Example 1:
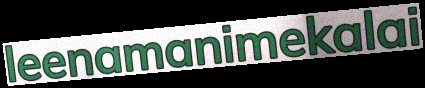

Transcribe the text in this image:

leenamanimekalai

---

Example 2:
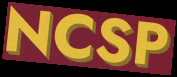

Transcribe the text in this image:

NCSP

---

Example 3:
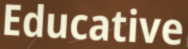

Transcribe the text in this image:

Educative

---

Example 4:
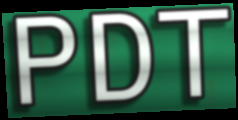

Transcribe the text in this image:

PDT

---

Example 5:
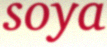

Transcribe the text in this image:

soya